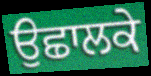
ਉਛਾਲਕੇ